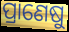
ପ୍ରାଣେଷୁ